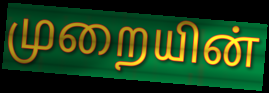
முறையின்